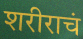
शरीराचं